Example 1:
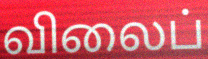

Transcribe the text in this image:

விலைப்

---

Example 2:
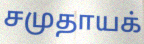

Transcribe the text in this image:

சமுதாயக்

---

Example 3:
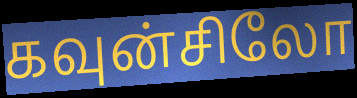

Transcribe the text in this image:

கவுன்சிலோ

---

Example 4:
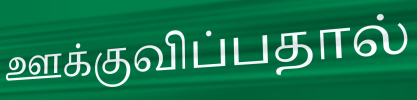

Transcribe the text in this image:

ஊக்குவிப்பதால்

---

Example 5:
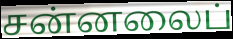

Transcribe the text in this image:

சன்னலைப்